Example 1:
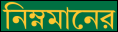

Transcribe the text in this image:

নিম্নমানের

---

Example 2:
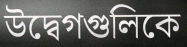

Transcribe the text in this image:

উদ্বেগগুলিকে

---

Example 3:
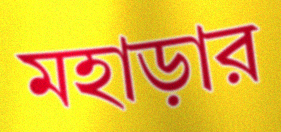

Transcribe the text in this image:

মহাড়ার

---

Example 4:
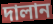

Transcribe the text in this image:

দালান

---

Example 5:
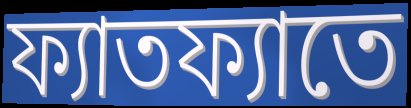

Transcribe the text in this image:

ফ্যাতফ্যাতে